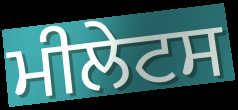
ਮੀਲੇਟਸ